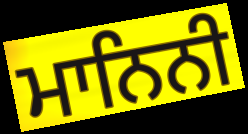
ਮਾਨਿਨੀ